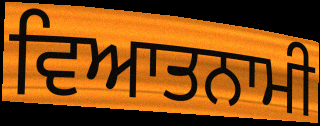
ਵਿਆਤਨਾਮੀ